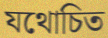
যথোচিত